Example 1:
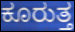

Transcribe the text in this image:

ಕೂರುತ್ತ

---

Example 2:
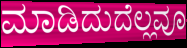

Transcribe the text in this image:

ಮಾಡಿದುದೆಲ್ಲವೂ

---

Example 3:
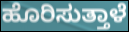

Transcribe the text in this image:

ಹೊರಿಸುತ್ತಾಳೆ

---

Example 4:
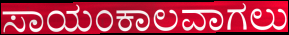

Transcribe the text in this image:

ಸಾಯಂಕಾಲವಾಗಲು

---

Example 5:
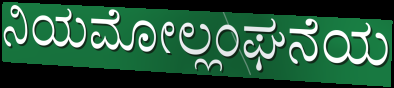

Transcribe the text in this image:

ನಿಯಮೋಲ್ಲಂಘನೆಯ